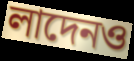
লাদেনও